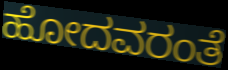
ಹೋದವರಂತೆ